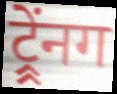
ट्र्रेंनग